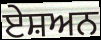
ਏਸ਼ਅਨ